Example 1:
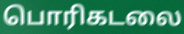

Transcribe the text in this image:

பொரிகடலை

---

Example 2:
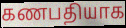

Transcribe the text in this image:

கணபதியாக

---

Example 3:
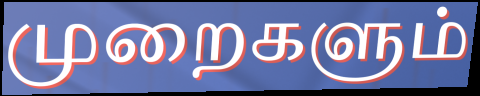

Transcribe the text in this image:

முறைகளும்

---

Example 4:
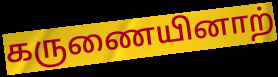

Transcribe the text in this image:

கருணையினாற்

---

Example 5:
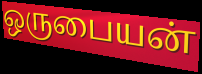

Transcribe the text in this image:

ஒருபையன்